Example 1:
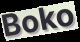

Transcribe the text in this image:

Boko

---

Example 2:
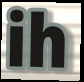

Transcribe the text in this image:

ih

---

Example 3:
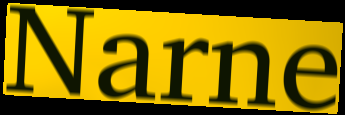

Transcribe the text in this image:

Narne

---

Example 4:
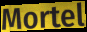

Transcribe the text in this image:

Mortel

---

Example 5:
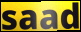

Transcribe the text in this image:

saad